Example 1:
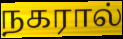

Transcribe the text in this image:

நகரால்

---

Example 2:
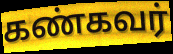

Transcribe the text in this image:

கண்கவர்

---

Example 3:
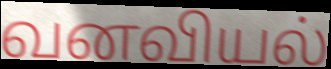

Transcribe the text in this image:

வனவியல்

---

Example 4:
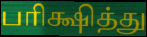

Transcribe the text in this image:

பரிக்ஷித்து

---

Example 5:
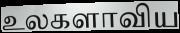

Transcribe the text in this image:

உலகளாவிய